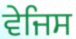
ਵੇਜਿਸ